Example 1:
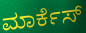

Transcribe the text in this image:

ಮಾರ್ಕೆಸ್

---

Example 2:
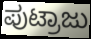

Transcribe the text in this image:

ಪುಟ್ರಾಜು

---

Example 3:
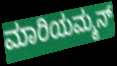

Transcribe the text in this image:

ಮಾರಿಯಮ್ಮನ್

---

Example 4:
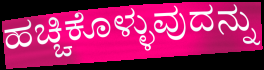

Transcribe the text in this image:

ಹಚ್ಚಿಕೊಳ್ಳುವುದನ್ನು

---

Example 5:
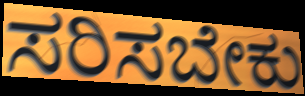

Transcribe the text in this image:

ಸರಿಸಬೇಕು